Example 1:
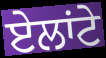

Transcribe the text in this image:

ਏਲਾਂਟੇ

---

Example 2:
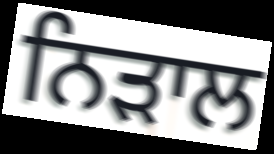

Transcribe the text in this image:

ਨਿੜਾਲ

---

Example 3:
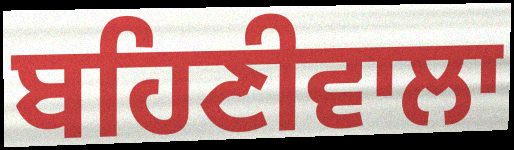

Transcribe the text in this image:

ਬਹਿਣੀਵਾਲਾ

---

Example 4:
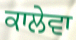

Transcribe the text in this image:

ਕਾਲੇਵਾ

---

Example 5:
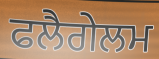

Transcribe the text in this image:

ਫਲੈਗੇਲਮ